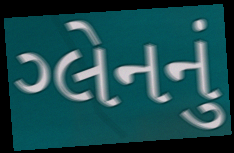
ગ્લેનનું